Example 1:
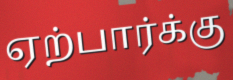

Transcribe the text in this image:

ஏற்பார்க்கு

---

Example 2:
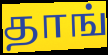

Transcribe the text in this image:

தாங்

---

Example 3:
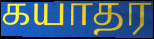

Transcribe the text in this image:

கயாதர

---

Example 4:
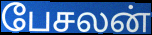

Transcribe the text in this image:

பேசலன்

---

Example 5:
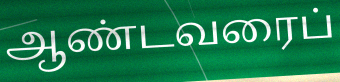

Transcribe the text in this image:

ஆண்டவரைப்